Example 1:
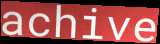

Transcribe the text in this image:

achive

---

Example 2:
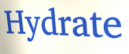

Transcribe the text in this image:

Hydrate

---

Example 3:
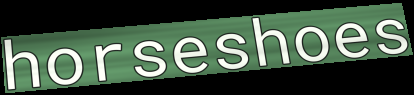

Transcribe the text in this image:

horseshoes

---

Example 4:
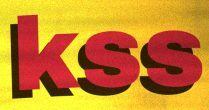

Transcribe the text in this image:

kss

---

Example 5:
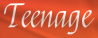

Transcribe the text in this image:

Teenage